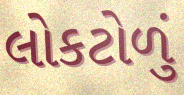
લોકટોળું